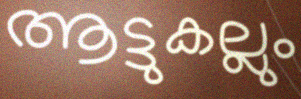
ആട്ടുകല്ലും